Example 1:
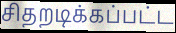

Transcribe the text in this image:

சிதறடிக்கப்பட்ட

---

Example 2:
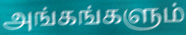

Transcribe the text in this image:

அங்கங்களும்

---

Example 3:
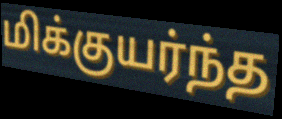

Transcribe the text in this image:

மிக்குயர்ந்த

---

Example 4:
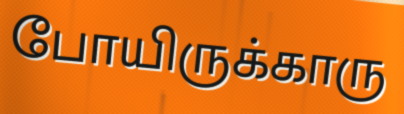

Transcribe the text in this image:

போயிருக்காரு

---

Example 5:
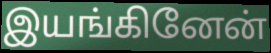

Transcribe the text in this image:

இயங்கினேன்